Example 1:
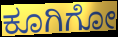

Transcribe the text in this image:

ಕೂಗಿಗೋ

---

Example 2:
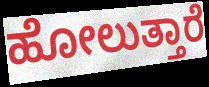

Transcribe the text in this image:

ಹೋಲುತ್ತಾರೆ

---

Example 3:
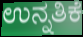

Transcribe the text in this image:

ಉನ್ನತಿಕೆ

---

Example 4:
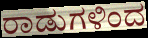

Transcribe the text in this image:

ರಾಡುಗಳಿಂದ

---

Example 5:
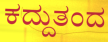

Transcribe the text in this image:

ಕದ್ದುತಂದ